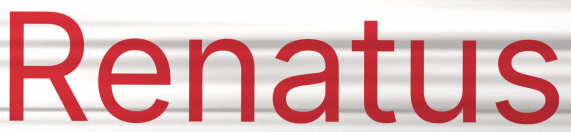
Renatus